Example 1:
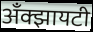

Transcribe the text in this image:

अँक्झायटी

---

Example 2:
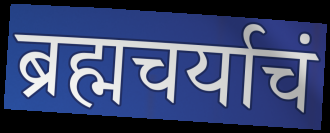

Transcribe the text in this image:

ब्रह्मचर्याचं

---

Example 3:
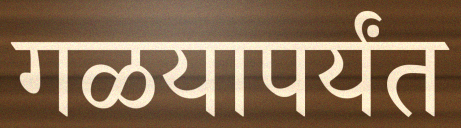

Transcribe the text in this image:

गळयापर्यंत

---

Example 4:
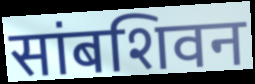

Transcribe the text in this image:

सांबशिवन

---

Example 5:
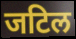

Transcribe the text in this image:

जटिल